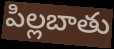
పిల్లబాతు